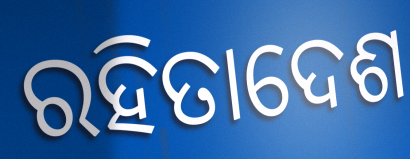
ରହିତାଦେଶ